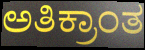
ಅತಿಕ್ರಾಂತ